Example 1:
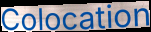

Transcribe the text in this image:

Colocation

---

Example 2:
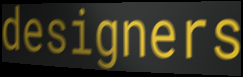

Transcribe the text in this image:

designers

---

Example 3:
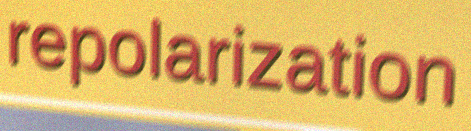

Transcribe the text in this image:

repolarization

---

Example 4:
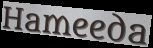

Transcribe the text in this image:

Hameeda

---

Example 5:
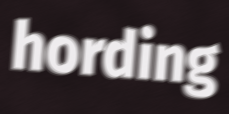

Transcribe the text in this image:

hording